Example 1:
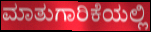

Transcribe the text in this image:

ಮಾತುಗಾರಿಕೆಯಲ್ಲಿ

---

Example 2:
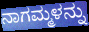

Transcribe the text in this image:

ನಾಗಮ್ಮಳನ್ನು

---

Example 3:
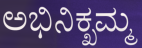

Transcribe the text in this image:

ಅಭಿನಿಕ್ಖಮ್ಮ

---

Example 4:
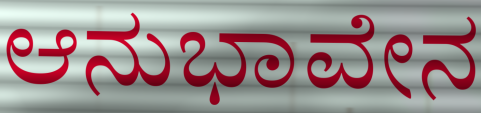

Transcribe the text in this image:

ಆನುಭಾವೇನ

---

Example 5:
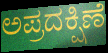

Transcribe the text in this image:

ಅಪ್ರದಕ್ಷಿಣೆ